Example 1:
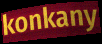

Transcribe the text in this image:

konkany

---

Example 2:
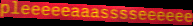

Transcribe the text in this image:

pleeeeeaaasssseeeeee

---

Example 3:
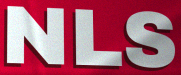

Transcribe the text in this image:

NLS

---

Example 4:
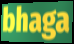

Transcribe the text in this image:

bhaga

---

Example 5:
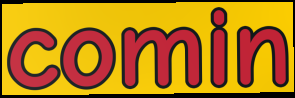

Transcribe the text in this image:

comin